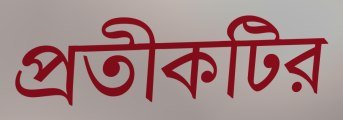
প্রতীকটির